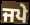
ਜਪੇ